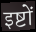
इष्टों